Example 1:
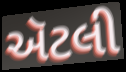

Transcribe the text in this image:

ઍટલી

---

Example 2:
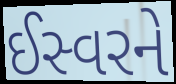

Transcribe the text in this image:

ઈસ્વરને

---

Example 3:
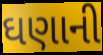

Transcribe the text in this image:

ઘણાની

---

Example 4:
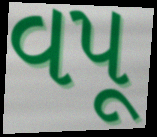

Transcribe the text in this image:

વપૂ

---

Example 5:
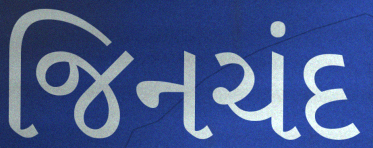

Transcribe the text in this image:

જિનચંદ